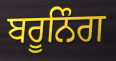
ਬਰੂਨਿੰਗ